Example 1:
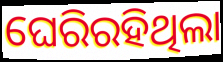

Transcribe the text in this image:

ଘେରିରହିଥିଲା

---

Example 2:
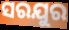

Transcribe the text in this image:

ସରଯୁର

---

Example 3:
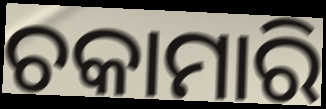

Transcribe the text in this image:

ଚକାମାରି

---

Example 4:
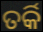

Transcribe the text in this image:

ତର୍କି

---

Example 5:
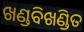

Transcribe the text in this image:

ଖଣ୍ଡବିଖଣ୍ଡିତ